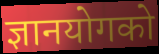
ज्ञानयोगको